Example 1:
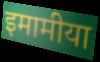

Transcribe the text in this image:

इमामीया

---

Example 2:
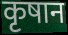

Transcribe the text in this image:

कृषान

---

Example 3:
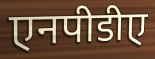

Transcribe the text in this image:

एनपीडीए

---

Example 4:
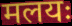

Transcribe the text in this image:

मलयः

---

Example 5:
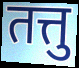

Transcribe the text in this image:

तत्तु